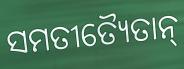
ସମତୀତ୍ୟୈତାନ୍